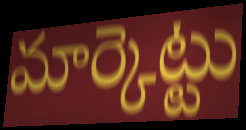
మార్కెట్టు